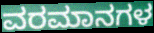
ವರಮಾನಗಳ